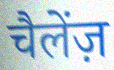
चैलेंज़